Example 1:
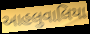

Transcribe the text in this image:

આહલુવાલિયા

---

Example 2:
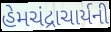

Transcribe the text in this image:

હેમચંદ્રાચાર્યની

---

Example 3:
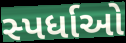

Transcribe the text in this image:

સ્પર્ધાઓ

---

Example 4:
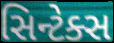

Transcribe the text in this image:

સિન્ટેક્સ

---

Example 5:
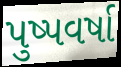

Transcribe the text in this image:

પુષ્પવર્ષા